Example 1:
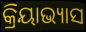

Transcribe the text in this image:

କ୍ରିୟାଭ୍ୟାସ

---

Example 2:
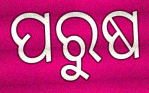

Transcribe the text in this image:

ପରୁଷ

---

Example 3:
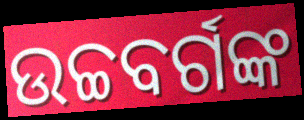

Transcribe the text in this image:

ଉଚ୍ଚବର୍ଗଙ୍କ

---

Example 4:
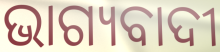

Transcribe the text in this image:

ଭାଗ୍ୟବାଦୀ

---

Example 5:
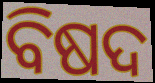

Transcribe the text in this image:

ବିଷଦ